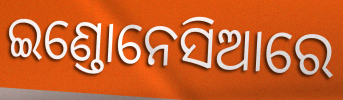
ଇଣ୍ଡୋନେସିଆରେ